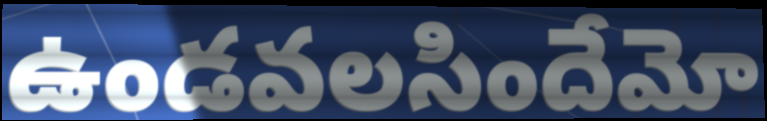
ఉండవలసిందేమో